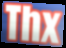
Thx